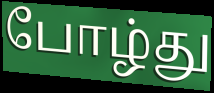
போழ்து